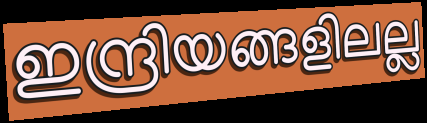
ഇന്ദ്രിയങ്ങളിലല്ല